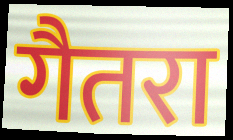
गैतरा